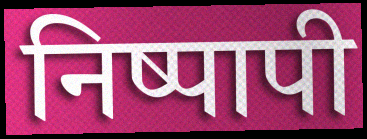
निष्पापी